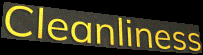
Cleanliness